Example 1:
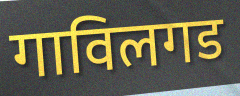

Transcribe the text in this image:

गाविलगड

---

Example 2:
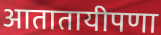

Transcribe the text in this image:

आतातायीपणा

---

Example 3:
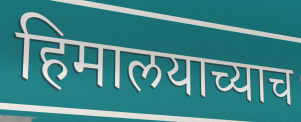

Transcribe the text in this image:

हिमालयाच्याच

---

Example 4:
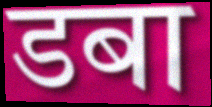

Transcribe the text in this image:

डबा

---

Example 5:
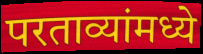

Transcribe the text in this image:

परताव्यांमध्ये